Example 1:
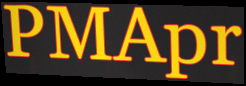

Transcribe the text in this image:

PMApr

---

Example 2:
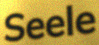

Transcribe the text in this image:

Seele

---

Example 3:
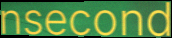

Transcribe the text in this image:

nsecond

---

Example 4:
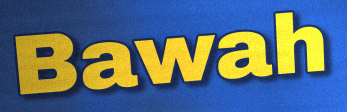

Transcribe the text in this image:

Bawah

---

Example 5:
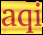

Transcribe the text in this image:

aqi